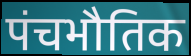
पंचभौतिक